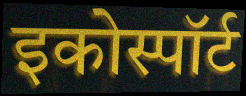
इकोस्पॉर्ट